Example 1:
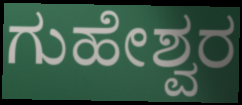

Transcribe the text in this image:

ಗುಹೇಶ್ವರ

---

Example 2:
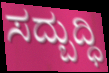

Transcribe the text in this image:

ಸದ್ಬುದ್ಧಿ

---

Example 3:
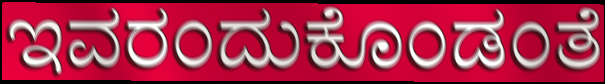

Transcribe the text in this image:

ಇವರಂದುಕೊಂಡಂತೆ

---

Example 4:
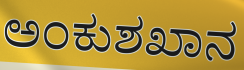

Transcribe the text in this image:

ಅಂಕುಶಖಾನ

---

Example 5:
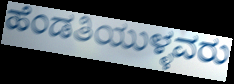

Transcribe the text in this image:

ಹೆಂಡತಿಯುಳ್ಳವರು